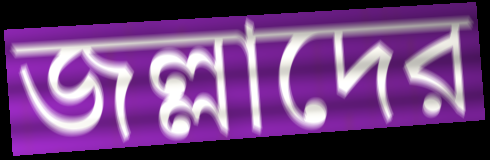
জল্লাদের